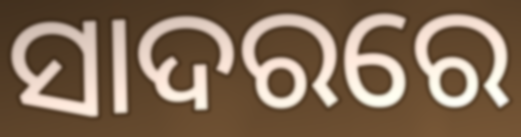
ସାଦରରେ